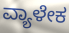
ವ್ಯಾಳೇಕ